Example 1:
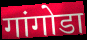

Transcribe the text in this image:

गांगोडा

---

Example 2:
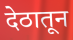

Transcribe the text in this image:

देठातून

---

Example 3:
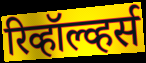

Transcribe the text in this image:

रिव्हॉल्व्हर्स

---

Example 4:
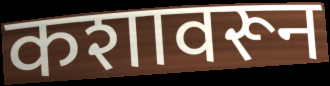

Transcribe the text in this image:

कशावरून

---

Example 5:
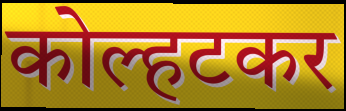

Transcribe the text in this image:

कोल्हटकर